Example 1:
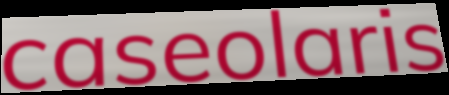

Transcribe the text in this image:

caseolaris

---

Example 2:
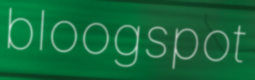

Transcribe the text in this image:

bloogspot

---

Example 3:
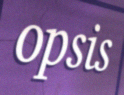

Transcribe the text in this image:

opsis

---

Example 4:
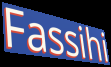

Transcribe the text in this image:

Fassihi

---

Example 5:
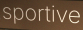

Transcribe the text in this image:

sportive